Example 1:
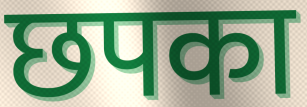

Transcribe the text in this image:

छपका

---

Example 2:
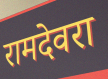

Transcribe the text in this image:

रामदेवरा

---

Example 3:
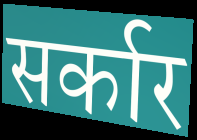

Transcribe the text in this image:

सर्कार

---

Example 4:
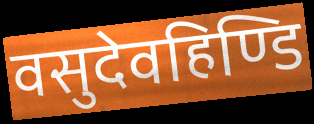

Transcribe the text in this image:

वसुदेवहिण्डि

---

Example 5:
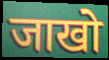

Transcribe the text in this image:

जाखो